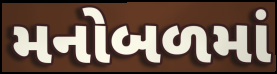
મનોબળમાં